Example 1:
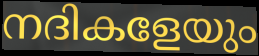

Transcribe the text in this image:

നദികളേയും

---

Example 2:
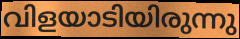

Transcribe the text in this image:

വിളയാടിയിരുന്നു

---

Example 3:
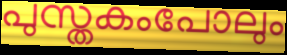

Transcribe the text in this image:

പുസ്തകംപോലും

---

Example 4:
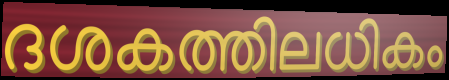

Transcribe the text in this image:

ദശകത്തിലധികം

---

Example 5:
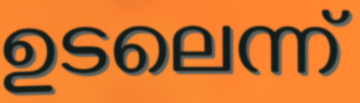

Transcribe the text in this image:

ഉടലെന്ന്